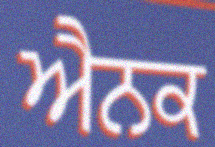
ਐਨਕ